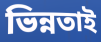
ভিন্নতাই